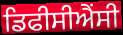
ਡਿਫੀਸੀਐਂਸੀ